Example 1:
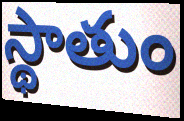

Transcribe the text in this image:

స్థాతుం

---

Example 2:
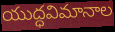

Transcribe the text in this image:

యుద్ధవిమానాల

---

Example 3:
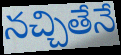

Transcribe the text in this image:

నచ్చితేనే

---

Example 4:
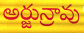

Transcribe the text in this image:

అర్జున్రావు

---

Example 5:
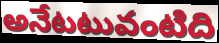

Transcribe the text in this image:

అనేటటువంటిది